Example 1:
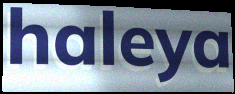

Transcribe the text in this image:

haleya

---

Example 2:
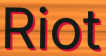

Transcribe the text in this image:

Riot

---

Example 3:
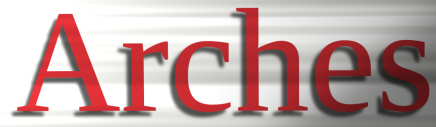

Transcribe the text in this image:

Arches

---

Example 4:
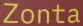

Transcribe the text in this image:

Zonta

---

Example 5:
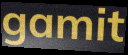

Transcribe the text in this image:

gamit